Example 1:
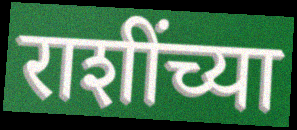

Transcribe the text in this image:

राशींच्या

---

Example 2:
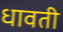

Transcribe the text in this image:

धावती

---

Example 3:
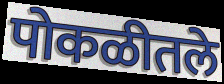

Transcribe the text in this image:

पोकळीतले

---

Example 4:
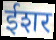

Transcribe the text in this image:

ईशर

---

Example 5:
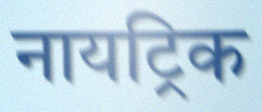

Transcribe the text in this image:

नायट्रिक